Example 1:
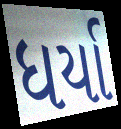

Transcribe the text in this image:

ધર્યા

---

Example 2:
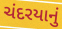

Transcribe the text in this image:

ચંદરયાનું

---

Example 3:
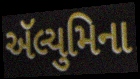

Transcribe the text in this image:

ઍલ્યુમિના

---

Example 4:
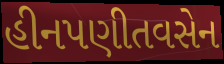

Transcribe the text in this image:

હીનપણીતવસેન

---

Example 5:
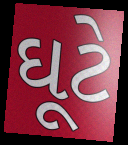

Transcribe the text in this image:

ઘૂટે